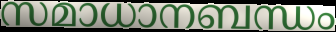
സമാധാനബന്ധം